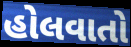
હોલવાતો